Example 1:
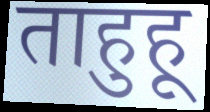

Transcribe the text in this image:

ताहुहू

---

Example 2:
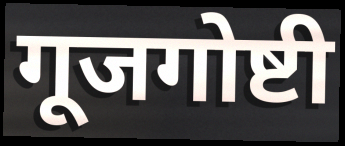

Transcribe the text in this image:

गूजगोष्टी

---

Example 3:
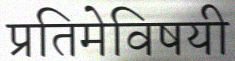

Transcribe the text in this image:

प्रतिमेविषयी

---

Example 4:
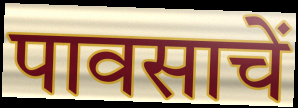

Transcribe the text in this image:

पावसाचें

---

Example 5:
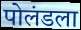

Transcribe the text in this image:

पोलंडला